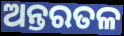
ଅନ୍ତରତଳ